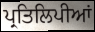
ਪ੍ਰਤਿਲਿਪੀਆਂ